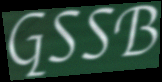
GSSB